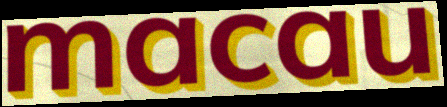
macau